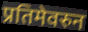
प्रतिमेवरुन